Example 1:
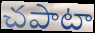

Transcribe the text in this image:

చపాటా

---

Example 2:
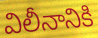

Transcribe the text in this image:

విలీనానికి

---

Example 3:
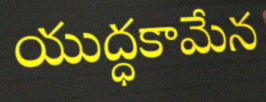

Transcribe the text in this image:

యుద్ధకామేన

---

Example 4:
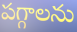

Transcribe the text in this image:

పగ్గాలను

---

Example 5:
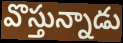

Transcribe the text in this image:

వొస్తున్నాడు